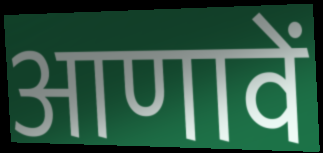
आणावें